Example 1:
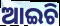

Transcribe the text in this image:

ଆଇଚି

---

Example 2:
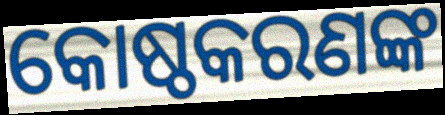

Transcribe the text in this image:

କୋଷ୍ଠକରଣଙ୍କ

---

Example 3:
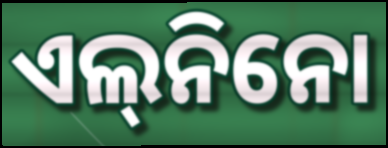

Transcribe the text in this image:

ଏଲ୍‌ନିନୋ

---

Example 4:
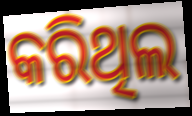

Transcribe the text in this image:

କରିଥିଲ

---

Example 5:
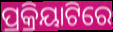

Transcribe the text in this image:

ପ୍ରକ୍ରିୟାଟିରେ